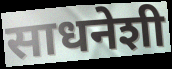
साधनेशी